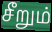
சீறும்